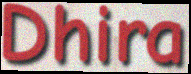
Dhira